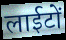
लाईटों